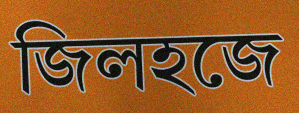
জিলহজে